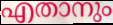
എതാനും